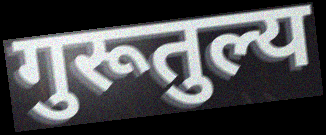
गुरूतुल्य